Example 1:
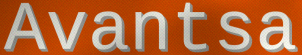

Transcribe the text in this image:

Avantsa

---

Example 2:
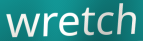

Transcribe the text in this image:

wretch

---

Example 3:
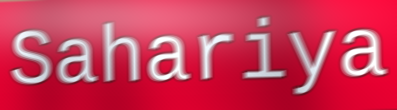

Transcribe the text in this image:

Sahariya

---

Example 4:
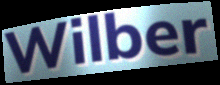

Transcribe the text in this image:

Wilber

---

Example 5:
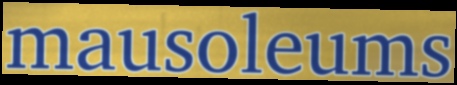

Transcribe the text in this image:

mausoleums